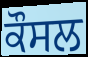
ਕੌਸਲ